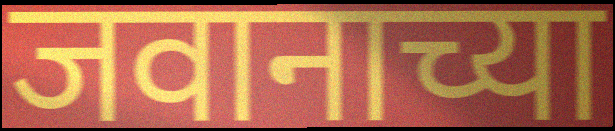
जवानाच्या